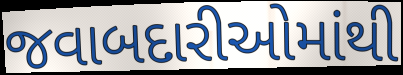
જવાબદારીઓમાંથી